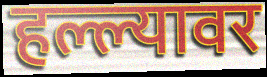
हल्ल्यावर